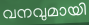
വനവുമായി